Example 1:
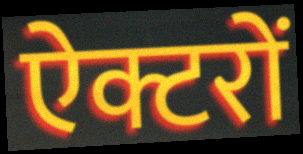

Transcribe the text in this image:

ऐक्टरों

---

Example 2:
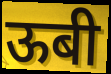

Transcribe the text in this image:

ऊबी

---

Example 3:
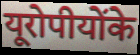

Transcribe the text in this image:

यूरोपीयोंके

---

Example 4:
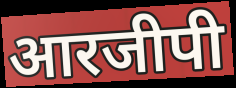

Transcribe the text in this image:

आरजीपी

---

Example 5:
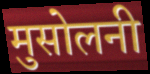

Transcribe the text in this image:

मुसोलनी